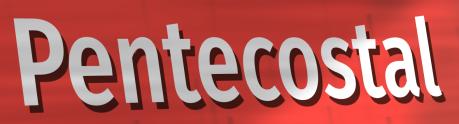
Pentecostal